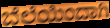
ಬೆಲೆಯಿಂದಾಗಿ